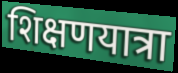
शिक्षणयात्रा